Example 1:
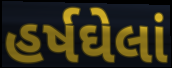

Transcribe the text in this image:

હર્ષઘેલાં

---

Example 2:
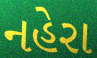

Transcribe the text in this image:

નહેરા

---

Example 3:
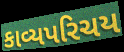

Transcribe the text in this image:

કાવ્યપરિચય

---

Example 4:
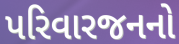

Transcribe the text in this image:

પરિવારજનનો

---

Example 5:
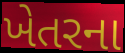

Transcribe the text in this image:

ખેતરના